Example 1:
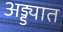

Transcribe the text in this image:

अड्ड्यात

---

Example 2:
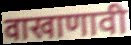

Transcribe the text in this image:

वाखाणावी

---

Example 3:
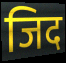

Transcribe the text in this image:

जिद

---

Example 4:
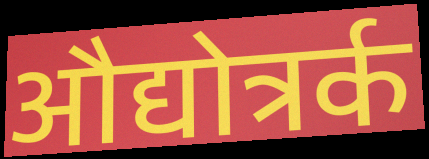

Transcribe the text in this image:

औद्योत्रर्क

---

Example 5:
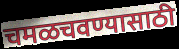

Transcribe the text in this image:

चमळचवण्यासाठी